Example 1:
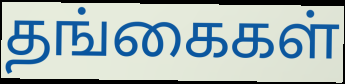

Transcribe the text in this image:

தங்கைகள்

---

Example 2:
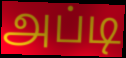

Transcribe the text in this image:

அப்டி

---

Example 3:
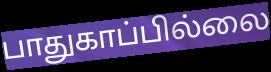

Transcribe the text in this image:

பாதுகாப்பில்லை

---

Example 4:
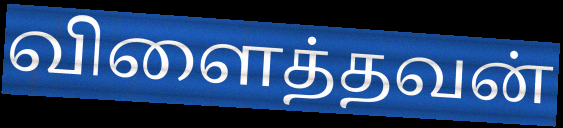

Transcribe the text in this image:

விளைத்தவன்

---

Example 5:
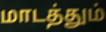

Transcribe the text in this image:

மாடத்தும்